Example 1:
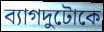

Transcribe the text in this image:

ব্যাগদুটোকে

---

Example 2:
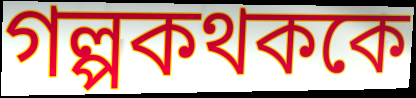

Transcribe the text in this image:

গল্পকথককে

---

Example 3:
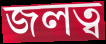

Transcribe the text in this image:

জলত্ব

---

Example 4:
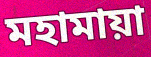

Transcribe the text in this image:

মহামায়া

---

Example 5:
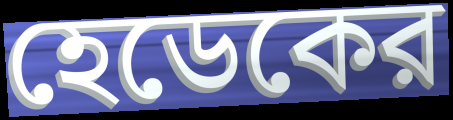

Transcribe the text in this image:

হেডেকের